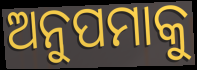
ଅନୁପମାକୁ